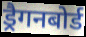
ड्रैगनबोर्ड